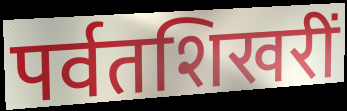
पर्वतशिखरीं